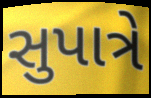
સુપાત્રે